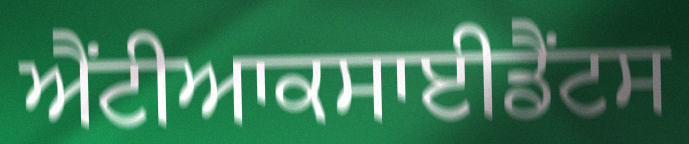
ਐਂਟੀਆਕਸਾਈਡੈਂਟਸ